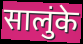
सालुंके